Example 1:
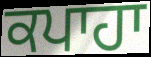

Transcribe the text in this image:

ਕਪਾਹਾ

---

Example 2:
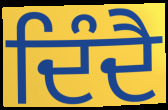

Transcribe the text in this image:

ਦਿੰਦੈ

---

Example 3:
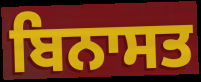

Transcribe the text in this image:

ਬਿਨਾਸਤ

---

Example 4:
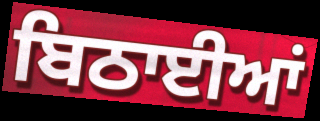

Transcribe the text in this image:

ਬਿਠਾਈਆਂ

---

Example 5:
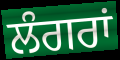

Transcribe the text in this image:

ਲੰਗਰਾਂ